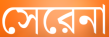
সেরেনা